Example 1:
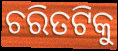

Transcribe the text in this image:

ଚରିତଟିକୁ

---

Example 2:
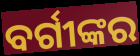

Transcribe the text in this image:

ବର୍ଗୀଙ୍କର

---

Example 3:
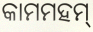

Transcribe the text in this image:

କାମମହମ୍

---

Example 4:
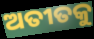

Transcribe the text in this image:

ଅତୀତକୁ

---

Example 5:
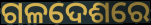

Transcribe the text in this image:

ଗଳଦେଶରେ